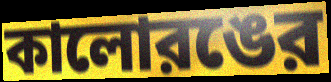
কালোরঙের